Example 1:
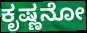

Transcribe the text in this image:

ಕೃಷ್ಣನೋ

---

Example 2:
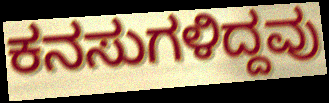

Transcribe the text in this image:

ಕನಸುಗಳಿದ್ದವು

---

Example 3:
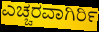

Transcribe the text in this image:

ಎಚ್ಚರವಾಗಿರ್ರಿ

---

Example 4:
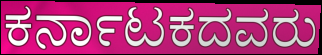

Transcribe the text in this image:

ಕರ್ನಾಟಕದವರು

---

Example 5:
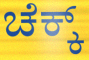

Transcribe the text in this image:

ಚೆಕ್ಕ್